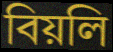
বিয়লি